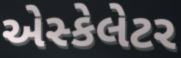
એસ્કેલેટર